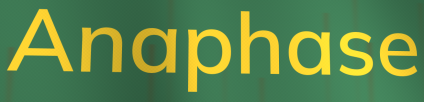
Anaphase